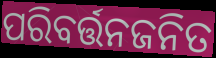
ପରିବର୍ତ୍ତନଜନିତ